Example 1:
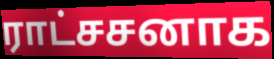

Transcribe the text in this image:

ராட்சசனாக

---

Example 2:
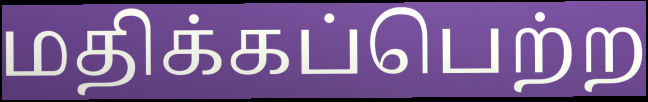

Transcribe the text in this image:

மதிக்கப்பெற்ற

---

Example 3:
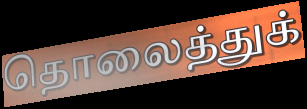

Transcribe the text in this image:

தொலைத்துக்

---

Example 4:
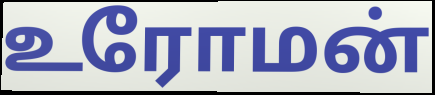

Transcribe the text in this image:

உரோமன்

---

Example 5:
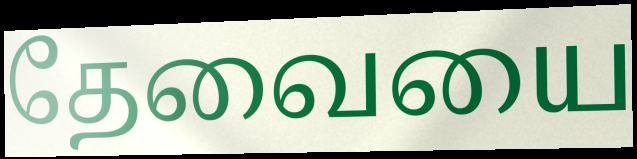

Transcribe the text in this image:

தேவையை